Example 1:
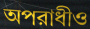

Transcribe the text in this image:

অপরাধীও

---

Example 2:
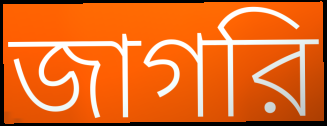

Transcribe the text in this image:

জাগরি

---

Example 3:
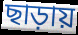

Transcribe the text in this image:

ছাড়ায়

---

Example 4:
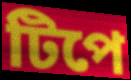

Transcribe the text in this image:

টিপে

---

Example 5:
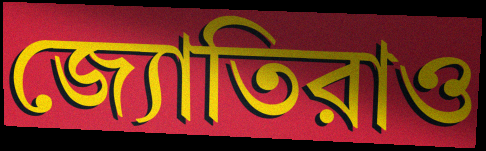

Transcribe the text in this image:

জ্যোতিরাও